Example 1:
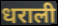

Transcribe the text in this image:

धराली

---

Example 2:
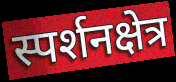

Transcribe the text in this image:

स्पर्शनक्षेत्र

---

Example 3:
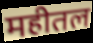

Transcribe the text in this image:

महीतल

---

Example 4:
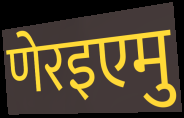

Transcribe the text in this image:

णेरइएमु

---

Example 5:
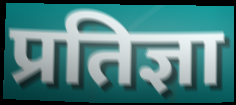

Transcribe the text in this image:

प्रतिज्ञा